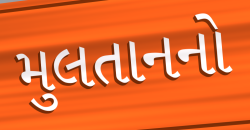
મુલતાનનો